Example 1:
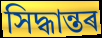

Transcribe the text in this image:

সিদ্ধান্তৰ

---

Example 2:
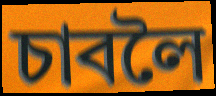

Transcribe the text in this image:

চাবলৈ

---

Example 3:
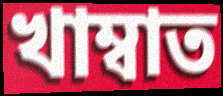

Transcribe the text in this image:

খাম্বাত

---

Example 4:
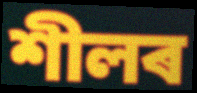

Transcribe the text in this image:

শীলৰ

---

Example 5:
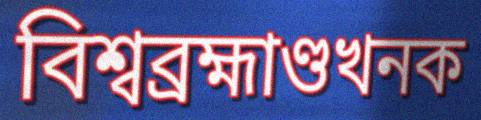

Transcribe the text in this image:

বিশ্বব্ৰহ্মাণ্ডখনক